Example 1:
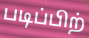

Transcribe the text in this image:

படிப்பிற்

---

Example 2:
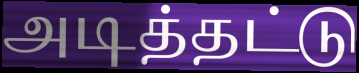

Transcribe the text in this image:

அடித்தட்டு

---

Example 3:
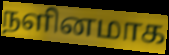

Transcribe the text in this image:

நளினமாக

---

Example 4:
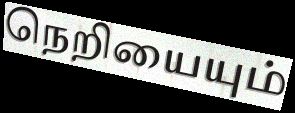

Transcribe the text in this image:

நெறியையும்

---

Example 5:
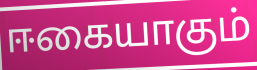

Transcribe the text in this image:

ஈகையாகும்